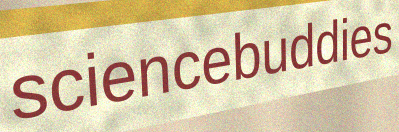
sciencebuddies